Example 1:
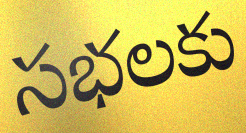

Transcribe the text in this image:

సభలకు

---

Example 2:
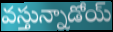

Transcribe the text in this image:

వస్తున్నాడోయ్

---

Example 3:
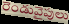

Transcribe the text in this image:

రెండువైపులు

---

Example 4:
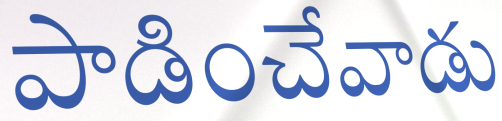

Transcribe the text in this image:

పాడించేవాడు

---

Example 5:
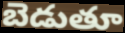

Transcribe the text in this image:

బెడుతూ